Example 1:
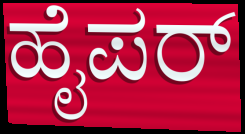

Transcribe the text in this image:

ಹೈಪರ್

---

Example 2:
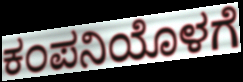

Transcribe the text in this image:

ಕಂಪನಿಯೊಳಗೆ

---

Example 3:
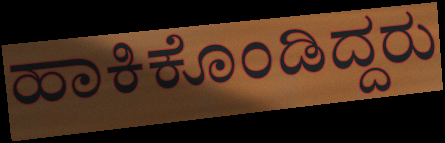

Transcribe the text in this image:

ಹಾಕಿಕೊಂಡಿದ್ದರು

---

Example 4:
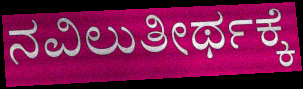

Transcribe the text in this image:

ನವಿಲುತೀರ್ಥಕ್ಕೆ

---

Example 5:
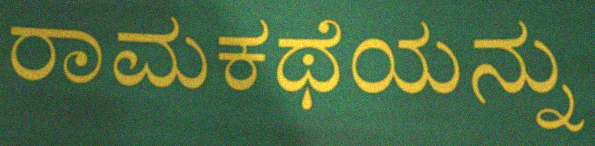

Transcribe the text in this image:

ರಾಮಕಥೆಯನ್ನು